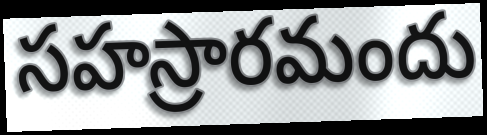
సహస్రారమందు